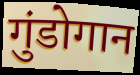
गुंडोगान